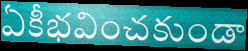
ఏకీభవించకుండా